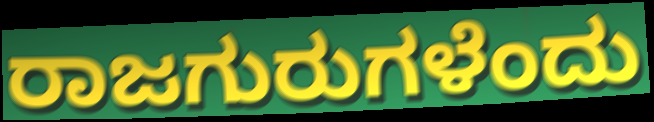
ರಾಜಗುರುಗಳೆಂದು